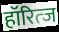
हॉरित्ज